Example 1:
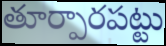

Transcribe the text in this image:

తూర్పారపట్టు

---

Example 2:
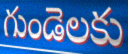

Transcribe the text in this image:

గుండెలకు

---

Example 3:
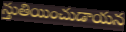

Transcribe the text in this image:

స్తుతియించుడాయన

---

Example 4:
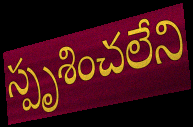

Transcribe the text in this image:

స్పృశించలేని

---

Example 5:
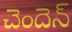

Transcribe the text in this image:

చెందెన్